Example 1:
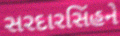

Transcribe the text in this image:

સરદારસિંહને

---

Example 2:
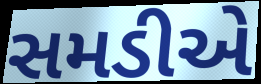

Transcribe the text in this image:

સમડીએ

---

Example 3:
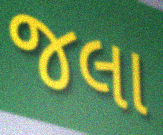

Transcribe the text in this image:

જલા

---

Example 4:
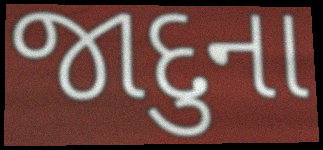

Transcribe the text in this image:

જાદુના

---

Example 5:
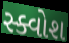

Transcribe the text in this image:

સ્ક્વોશ